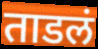
ताडलं